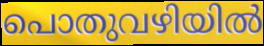
പൊതുവഴിയിൽ